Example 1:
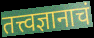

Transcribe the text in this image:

तत्त्वज्ञानाचं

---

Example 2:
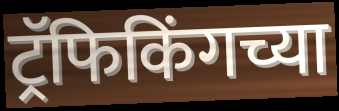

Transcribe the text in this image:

ट्रॅफिकिंगच्या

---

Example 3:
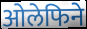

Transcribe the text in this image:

ओलेफिने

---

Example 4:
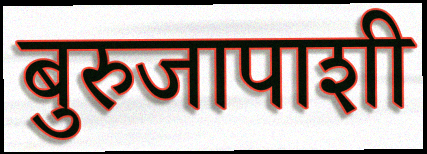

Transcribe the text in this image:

बुरुजापाशी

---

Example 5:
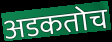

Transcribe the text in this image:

अडकतोच